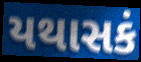
યથાસકં